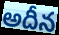
అదీన